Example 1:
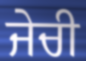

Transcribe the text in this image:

ਜੇਚੀ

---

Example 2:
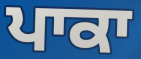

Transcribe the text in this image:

ਪਾਕਾ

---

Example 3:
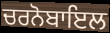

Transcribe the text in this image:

ਚਰਨੋਬਾਇਲ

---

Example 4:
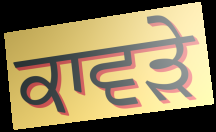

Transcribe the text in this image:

ਕਾਵੜੇ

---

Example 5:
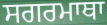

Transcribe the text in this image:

ਸਗਰਮਾਥਾ